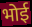
भोई